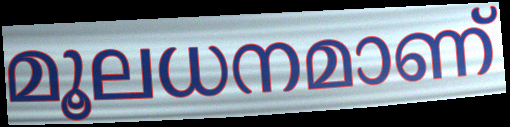
മൂലധനമാണ്